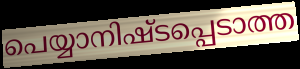
പെയ്യാനിഷ്ടപ്പെടാത്ത